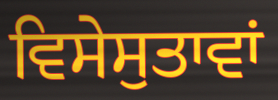
ਵਿਸੇਸੁਤਾਵਾਂ